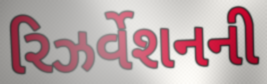
રિઝર્વેશનની